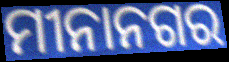
ମୀନାନଗର